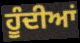
ਹੂੰਦੀਆਂ